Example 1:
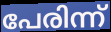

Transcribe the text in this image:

പേരിന്ന്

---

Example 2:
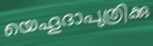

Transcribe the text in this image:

യെഹൂദാപുത്രിക്കു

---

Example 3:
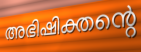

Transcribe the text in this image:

അഭിഷിക്തന്റെ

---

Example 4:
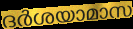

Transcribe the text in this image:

ദർശയാമാസ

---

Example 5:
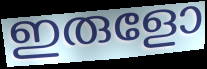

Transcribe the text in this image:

ഇരുളോ